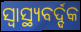
ସ୍ଵାସ୍ଥ୍ୟବର୍ଦ୍ଦକ